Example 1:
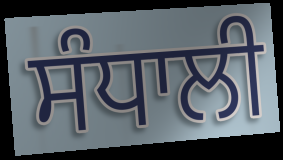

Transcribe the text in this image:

ਸੰਧਾਲੀ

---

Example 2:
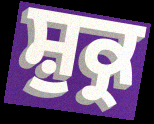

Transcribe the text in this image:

ਸ਼ੁਕ੍ਰ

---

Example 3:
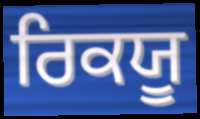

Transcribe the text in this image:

ਰਿਕਯੂ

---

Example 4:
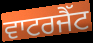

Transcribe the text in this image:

ਵਾਟਰਜੈੱਟ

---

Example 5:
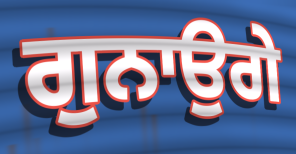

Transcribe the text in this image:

ਗੁਨਾਉਗੇ